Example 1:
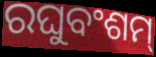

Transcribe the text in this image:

ରଘୁବଂଶମ୍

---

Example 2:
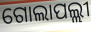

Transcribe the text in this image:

ଗୋଲାପଲ୍ଲୀ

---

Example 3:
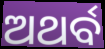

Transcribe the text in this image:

ଅଥର୍ବ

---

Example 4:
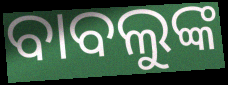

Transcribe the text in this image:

ବାବଲୁଙ୍କ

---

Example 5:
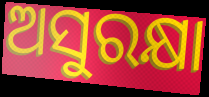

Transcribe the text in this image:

ଅସୁରକ୍ଷା